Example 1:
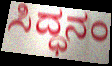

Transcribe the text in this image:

ಸಿದ್ಧನಂ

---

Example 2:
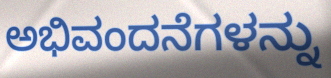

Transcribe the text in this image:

ಅಭಿವಂದನೆಗಳನ್ನು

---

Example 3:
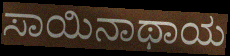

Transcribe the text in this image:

ಸಾಯಿನಾಥಾಯ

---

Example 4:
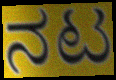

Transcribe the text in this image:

ನಟ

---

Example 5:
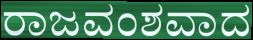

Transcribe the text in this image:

ರಾಜವಂಶವಾದ